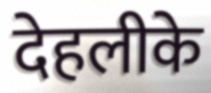
देहलीके